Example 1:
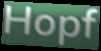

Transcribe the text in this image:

Hopf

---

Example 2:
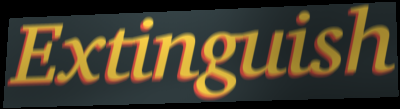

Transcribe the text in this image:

Extinguish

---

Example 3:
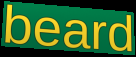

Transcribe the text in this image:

beard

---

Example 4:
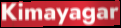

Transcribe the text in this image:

Kimayagar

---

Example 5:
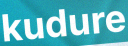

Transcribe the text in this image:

kudure